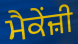
ਮੈਕੇਂਜ਼ੀ